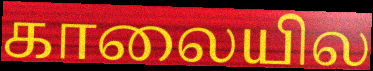
காலையில